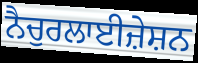
ਨੈਚੁਰਲਾਈਜ਼ੇਸ਼ਨ